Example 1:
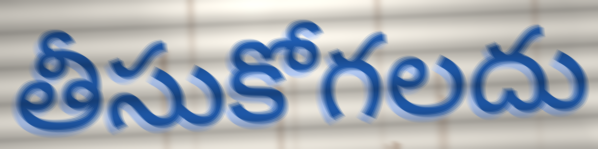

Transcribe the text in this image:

తీసుకోగలదు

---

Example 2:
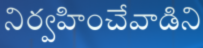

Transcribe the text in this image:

నిర్వహించేవాడిని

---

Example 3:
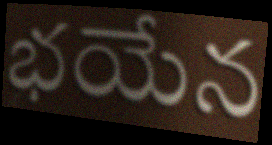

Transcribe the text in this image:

భయేన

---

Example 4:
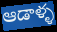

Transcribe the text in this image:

ఆడాళ్ళ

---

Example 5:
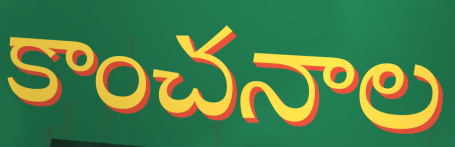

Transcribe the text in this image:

కాంచనాల